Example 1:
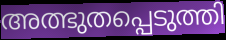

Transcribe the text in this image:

അത്ഭുതപ്പെടുത്തി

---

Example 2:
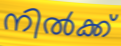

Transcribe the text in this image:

നിൽക്ക്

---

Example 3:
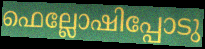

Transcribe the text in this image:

ഫെല്ലോഷിപ്പോടു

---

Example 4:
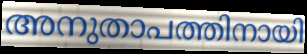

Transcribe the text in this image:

അനുതാപത്തിനായി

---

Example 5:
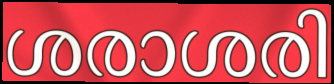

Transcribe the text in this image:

ശരാശരി